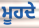
ਮੂਹਦੇ